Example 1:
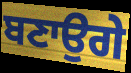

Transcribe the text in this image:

ਬਣਾਉਗੇ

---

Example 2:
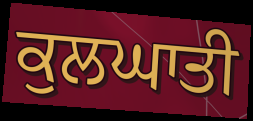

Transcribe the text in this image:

ਕੁਲਘਾਤੀ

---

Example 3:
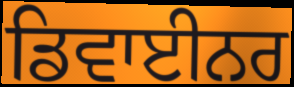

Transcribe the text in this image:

ਡਿਵਾਈਨਰ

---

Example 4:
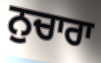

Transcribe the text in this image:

ਨੁਚਾਰਾ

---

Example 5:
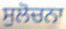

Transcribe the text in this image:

ਸੁਲੋਚਨਾ